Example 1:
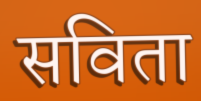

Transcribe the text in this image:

सविता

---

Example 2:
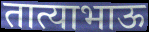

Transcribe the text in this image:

तात्याभाऊ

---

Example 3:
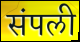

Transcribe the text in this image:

संपली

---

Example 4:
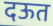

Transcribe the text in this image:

दऊत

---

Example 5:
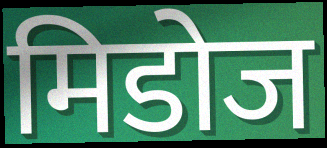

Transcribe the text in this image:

मिडोज